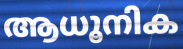
ആധൂനിക